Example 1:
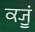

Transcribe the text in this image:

ਕ੍ਯੂਂ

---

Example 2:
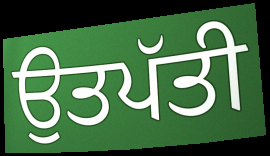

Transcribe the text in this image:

ਉਤਪੱਤੀ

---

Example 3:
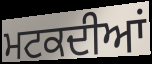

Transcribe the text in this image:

ਮਟਕਦੀਆਂ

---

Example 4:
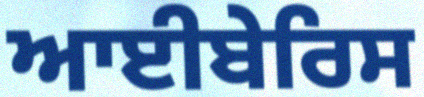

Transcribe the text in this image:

ਆਈਬੇਰਿਸ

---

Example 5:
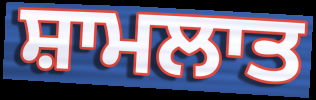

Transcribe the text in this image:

ਸ਼ਾਮਲਾਤ